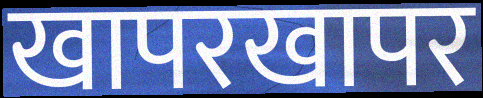
खापरखापर